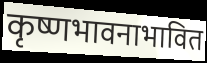
कृष्णभावनाभावित